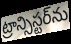
ట్రాన్సిస్టర్‌ను